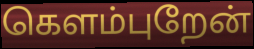
கெளம்புறேன்